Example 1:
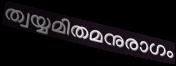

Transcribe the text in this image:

ത്വയ്യമിതമനുരാഗം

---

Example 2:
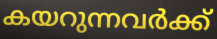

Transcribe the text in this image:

കയറുന്നവർക്ക്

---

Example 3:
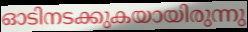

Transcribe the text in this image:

ഓടിനടക്കുകയായിരുന്നു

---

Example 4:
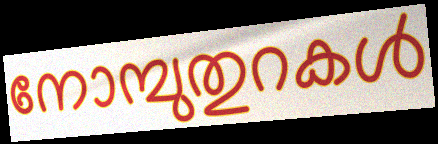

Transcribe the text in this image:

നോമ്പുതുറകൾ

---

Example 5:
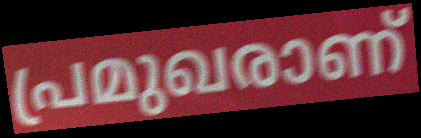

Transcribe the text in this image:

പ്രമുഖരാണ്